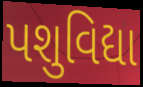
પશુવિદ્યા